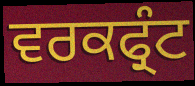
ਵਰਕਫ੍ਰੰਟ